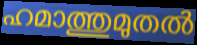
ഹമാത്തുമുതൽ